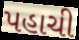
પહાચી